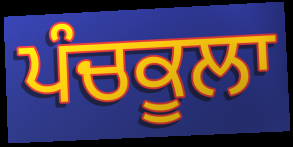
ਪੰਚਕੂਲਾ